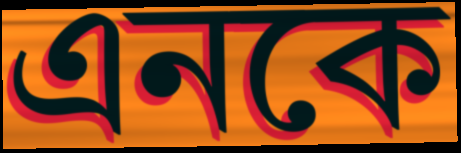
এনকে